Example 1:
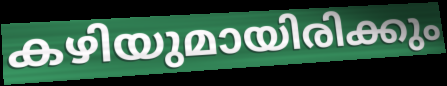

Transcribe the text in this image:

കഴിയുമായിരിക്കും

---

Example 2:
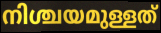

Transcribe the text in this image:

നിശ്ചയമുള്ളത്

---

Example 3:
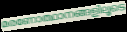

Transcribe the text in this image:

മരണോത്ഥാനങ്ങളിലൂടെ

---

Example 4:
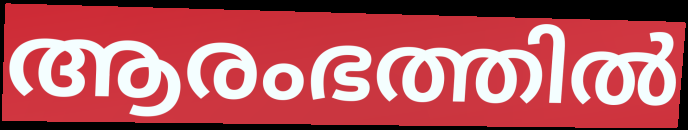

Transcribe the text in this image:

ആരംഭത്തിൽ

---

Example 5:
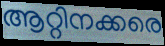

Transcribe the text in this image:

ആറ്റിനക്കരെ